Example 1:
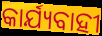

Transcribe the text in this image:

କାର୍ଯ୍ୟବାହୀ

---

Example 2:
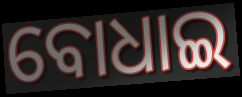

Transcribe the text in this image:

ବୋଧାଇ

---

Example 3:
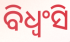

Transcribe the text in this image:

ବିଧ୍ୱଂସି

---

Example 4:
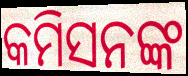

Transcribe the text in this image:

କମିସନଙ୍କ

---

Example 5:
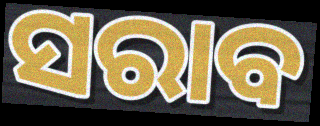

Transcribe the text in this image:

ସରାବ